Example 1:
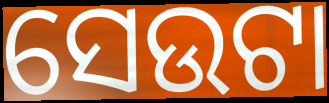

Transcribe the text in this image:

ସେଉଟା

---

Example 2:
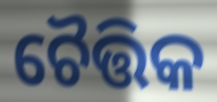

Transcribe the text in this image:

ଚୈତ୍ତିକ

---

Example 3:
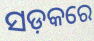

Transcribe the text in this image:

ସଡ଼କରେ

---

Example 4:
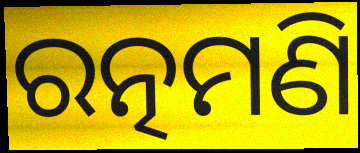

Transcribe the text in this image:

ରତ୍ନମଣି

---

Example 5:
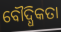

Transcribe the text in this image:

ବୌଦ୍ଧିକତା